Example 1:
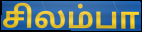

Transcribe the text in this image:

சிலம்பா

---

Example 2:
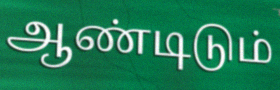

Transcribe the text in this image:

ஆண்டிடும்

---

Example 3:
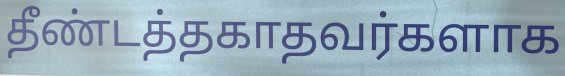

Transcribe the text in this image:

தீண்டத்தகாதவர்களாக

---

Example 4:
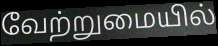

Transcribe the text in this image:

வேற்றுமையில்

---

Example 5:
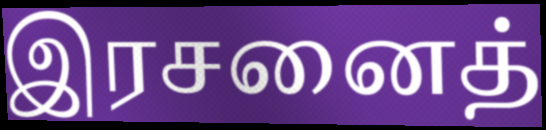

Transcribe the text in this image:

இரசனைத்